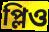
প্লিও